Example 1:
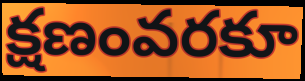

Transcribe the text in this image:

క్షణంవరకూ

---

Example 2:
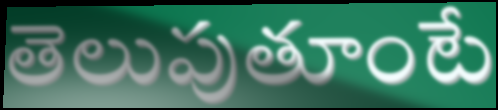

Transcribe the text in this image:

తెలుపుతూంటే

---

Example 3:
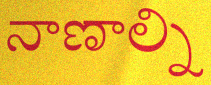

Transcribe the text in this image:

నాణాల్ని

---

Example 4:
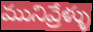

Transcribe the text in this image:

మునివ్రేళ్ళు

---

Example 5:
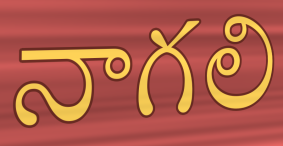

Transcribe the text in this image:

నాగలి